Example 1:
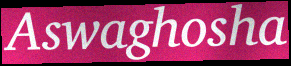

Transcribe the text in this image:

Aswaghosha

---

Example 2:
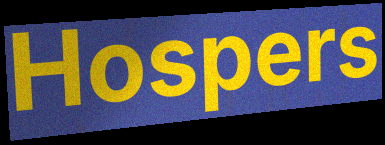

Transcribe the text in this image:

Hospers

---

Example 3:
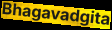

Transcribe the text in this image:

Bhagavadgita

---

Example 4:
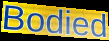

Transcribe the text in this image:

Bodied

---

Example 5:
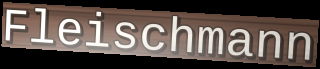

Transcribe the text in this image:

Fleischmann